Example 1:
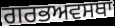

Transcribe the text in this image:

ਗਰਭਅਵਸਥਾ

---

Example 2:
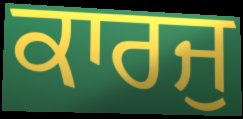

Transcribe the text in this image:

ਕਾਰਜੁ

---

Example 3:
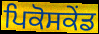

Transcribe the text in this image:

ਪਿਕੋਸਕੇਂਡ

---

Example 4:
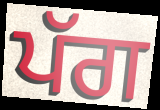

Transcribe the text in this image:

ਪੱਗ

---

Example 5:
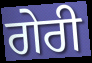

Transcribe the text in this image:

ਗੇਰੀ